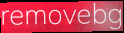
removebg